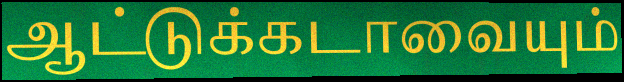
ஆட்டுக்கடாவையும்